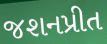
જશનપ્રીત